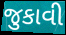
જુકાવી